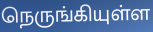
நெருங்கியுள்ள